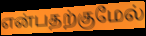
என்பதற்குமேல்